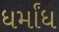
ધર્માંધ